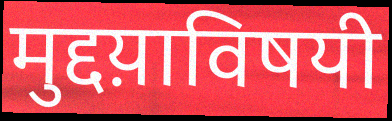
मुद्दय़ाविषयी